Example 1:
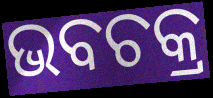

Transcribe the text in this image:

ଭବଚକ୍ର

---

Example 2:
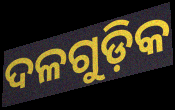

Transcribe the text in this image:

ଦଳଗୁଡ଼ିକ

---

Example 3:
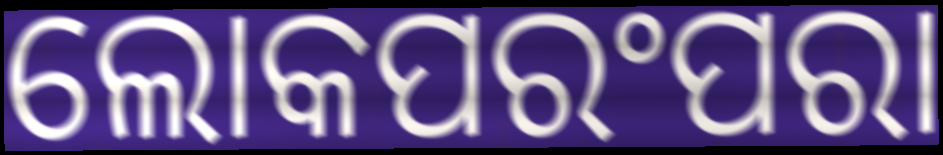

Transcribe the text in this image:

ଲୋକପରଂପରା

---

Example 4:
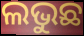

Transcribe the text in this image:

ଲଭୁଛ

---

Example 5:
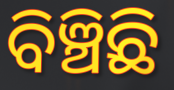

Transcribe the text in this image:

ବିଞ୍ଚିଛି